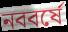
নববর্ষে